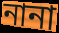
নানা